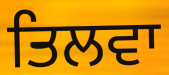
ਤਿਲਵਾ